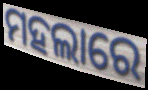
ମହଲାରେ